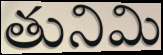
తునిమి